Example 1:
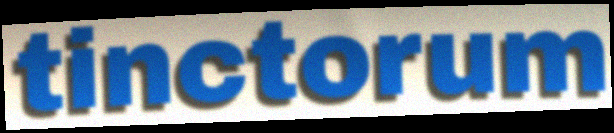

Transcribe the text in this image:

tinctorum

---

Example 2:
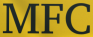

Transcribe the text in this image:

MFC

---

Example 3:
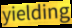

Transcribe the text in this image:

yielding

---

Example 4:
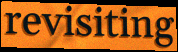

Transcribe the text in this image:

revisiting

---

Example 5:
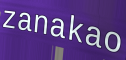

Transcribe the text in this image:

zanakao